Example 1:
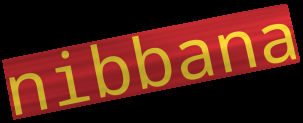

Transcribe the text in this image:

nibbana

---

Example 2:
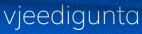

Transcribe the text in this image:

vjeedigunta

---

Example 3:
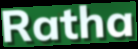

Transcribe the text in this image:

Ratha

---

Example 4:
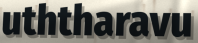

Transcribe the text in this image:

uththaravu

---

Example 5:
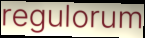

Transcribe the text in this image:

regulorum